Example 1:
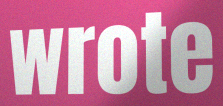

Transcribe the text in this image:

wrote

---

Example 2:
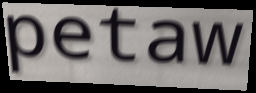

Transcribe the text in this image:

petaw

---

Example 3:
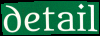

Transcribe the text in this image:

detail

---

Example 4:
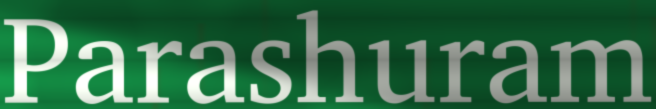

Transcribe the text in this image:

Parashuram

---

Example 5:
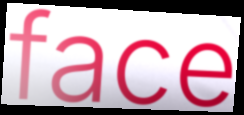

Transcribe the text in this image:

face